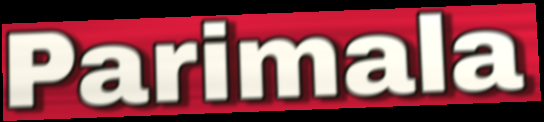
Parimala